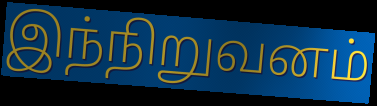
இந்நிறுவனம்